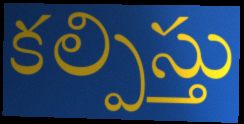
కల్పిస్తు